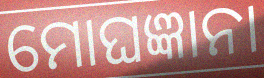
ମୋଘଜ୍ଞାନା